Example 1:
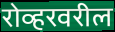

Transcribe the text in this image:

रोव्हरवरील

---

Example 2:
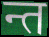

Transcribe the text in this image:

न्त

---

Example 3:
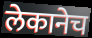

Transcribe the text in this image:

लेकानेच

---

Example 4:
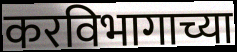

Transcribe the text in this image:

करविभागाच्या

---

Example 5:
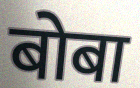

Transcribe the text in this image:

बोबा